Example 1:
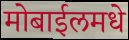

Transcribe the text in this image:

मोबाईलमधे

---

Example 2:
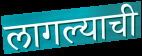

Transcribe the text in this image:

लागल्याची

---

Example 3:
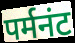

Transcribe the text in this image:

पर्मनंट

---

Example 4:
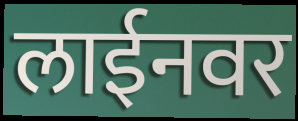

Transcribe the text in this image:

लाईनवर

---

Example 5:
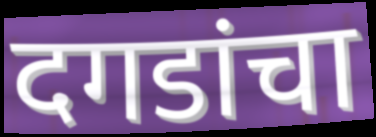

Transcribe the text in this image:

दगडांचा